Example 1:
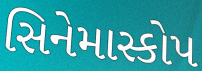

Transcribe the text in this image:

સિનેમાસ્કોપ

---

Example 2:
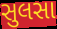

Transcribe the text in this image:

સુલસા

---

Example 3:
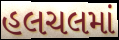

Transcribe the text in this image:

હલચલમાં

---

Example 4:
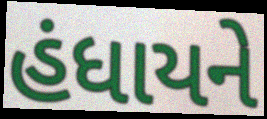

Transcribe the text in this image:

હંધાયને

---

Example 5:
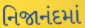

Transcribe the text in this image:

નિજાનંદમાં